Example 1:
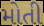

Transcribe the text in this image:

મોતી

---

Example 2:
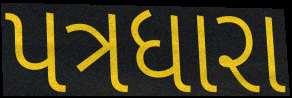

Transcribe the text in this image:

પત્રધારા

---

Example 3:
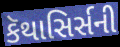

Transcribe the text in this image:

કૅથાસિર્સની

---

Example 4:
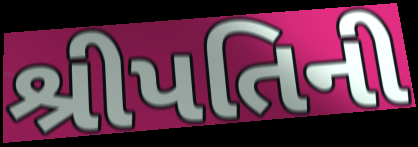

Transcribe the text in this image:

શ્રીપતિની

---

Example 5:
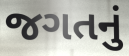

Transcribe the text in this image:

જગતનું